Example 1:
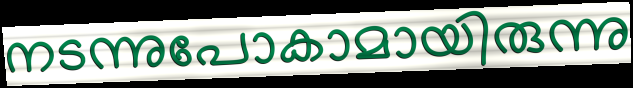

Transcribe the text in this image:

നടന്നുപോകാമായിരുന്നു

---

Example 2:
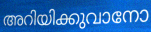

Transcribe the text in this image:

അറിയിക്കുവാനോ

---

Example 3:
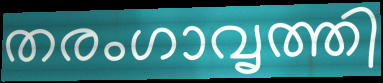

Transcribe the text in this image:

തരംഗാവൃത്തി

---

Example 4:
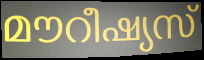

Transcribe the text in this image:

മൗറീഷ്യസ്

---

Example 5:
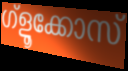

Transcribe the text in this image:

ഗ്ളൂക്കോസ്